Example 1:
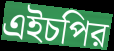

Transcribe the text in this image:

এইচপির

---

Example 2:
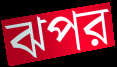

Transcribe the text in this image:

ঝপর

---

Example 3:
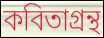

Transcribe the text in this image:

কবিতাগ্রন্থ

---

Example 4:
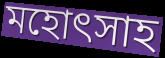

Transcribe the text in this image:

মহোৎসাহ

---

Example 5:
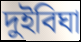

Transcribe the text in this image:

দুইবিঘা